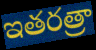
ఇతరత్రా